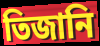
তিজানি